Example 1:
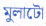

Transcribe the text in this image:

মুলাটো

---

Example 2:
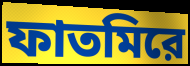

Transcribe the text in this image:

ফাতমিরে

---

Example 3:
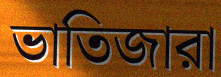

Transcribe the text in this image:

ভাতিজারা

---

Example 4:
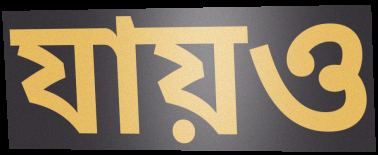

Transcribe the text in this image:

যায়ও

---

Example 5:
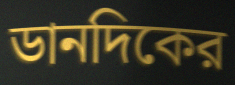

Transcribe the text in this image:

ডানদিকের